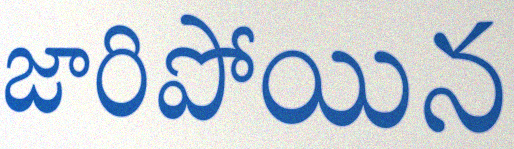
జారిపోయిన